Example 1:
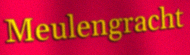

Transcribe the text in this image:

Meulengracht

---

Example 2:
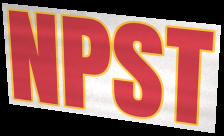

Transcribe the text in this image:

NPST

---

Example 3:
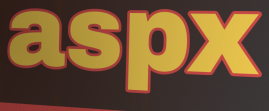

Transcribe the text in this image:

aspx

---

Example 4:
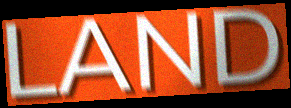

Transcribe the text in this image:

LAND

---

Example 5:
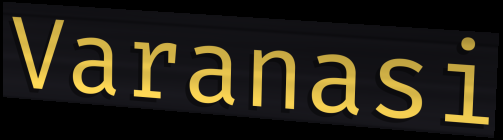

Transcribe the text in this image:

Varanasi